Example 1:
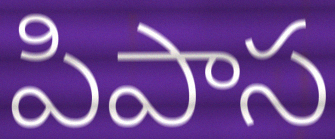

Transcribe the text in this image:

పిపాస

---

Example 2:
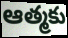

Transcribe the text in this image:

ఆత్మకు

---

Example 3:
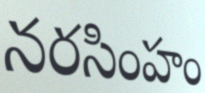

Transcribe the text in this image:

నరసింహం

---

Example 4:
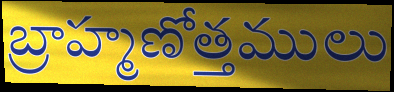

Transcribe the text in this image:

బ్రాహ్మణోత్తములు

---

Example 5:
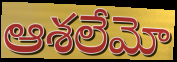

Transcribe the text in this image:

ఆశలేమో